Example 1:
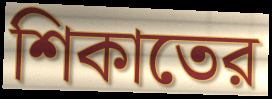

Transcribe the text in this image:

শিকাতের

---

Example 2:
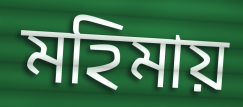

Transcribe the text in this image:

মহিমায়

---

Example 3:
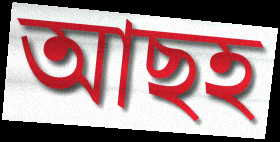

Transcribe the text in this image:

আছহ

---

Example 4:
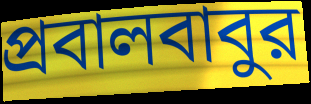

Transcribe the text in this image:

প্রবালবাবুর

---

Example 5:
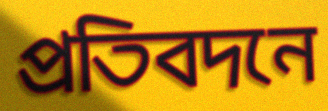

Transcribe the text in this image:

প্রতিবদনে